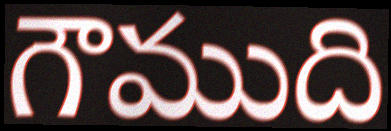
గౌముది